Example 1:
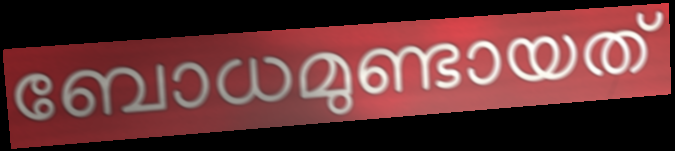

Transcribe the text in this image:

ബോധമുണ്ടായത്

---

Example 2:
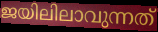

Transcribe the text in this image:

ജയിലിലാവുന്നത്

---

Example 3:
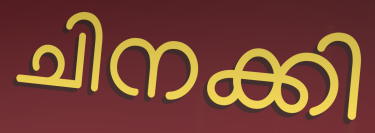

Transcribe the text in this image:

ചിനക്കി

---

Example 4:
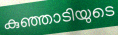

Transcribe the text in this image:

കുഞ്ഞാടിയുടെ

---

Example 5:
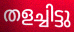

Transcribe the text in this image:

തളച്ചിട്ടു